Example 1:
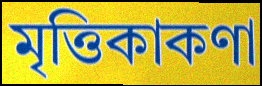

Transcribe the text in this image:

মৃত্তিকাকণা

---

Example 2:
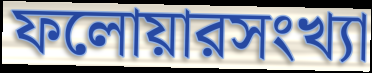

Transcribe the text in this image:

ফলোয়ারসংখ্যা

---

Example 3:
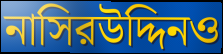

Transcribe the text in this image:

নাসিরউদ্দিনও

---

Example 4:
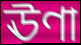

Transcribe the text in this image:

ঊণা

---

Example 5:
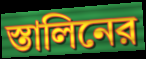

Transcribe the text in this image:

স্তালিনের